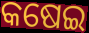
କଷେଇ